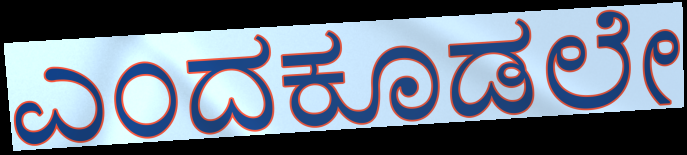
ಎಂದಕೂಡಲೇ